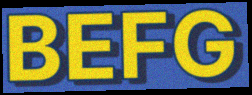
BEFG